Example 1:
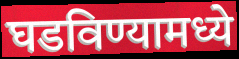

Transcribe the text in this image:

घडविण्यामध्ये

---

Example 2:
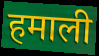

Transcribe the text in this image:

हमाली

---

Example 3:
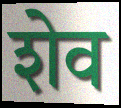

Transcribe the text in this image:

शेव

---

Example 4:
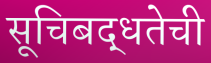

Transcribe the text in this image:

सूचिबद्धतेची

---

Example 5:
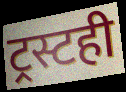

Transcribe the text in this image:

ट्रस्टही